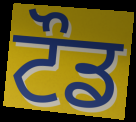
ਟੌਡ